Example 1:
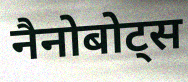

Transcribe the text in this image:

नैनोबोट्स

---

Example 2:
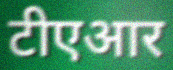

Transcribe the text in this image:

टीएआर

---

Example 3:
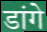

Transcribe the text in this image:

डांगे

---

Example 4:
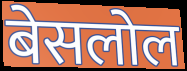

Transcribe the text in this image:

बेसलोल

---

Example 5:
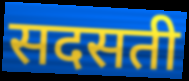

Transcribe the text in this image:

सदसती